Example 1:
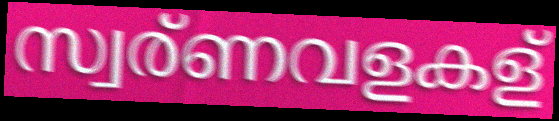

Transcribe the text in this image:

സ്വര്ണവളകള്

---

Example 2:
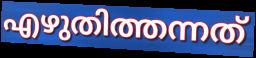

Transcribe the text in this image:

എഴുതിത്തന്നത്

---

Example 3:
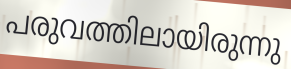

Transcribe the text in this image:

പരുവത്തിലായിരുന്നു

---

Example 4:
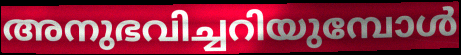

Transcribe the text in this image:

അനുഭവിച്ചറിയുമ്പോൾ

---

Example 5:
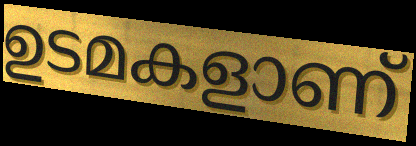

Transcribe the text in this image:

ഉടമകളാണ്